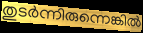
തുടർന്നിരുന്നെങ്കിൽ